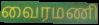
வைரமணி